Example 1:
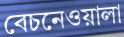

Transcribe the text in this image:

বেচনেওয়ালা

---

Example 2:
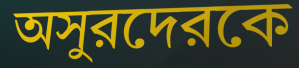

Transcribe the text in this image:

অসুরদেরকে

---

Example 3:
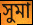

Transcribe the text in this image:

সুমা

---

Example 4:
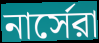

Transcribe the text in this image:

নার্সেরা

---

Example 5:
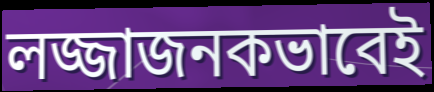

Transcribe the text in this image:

লজ্জাজনকভাবেই